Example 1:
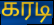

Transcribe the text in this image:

கரடி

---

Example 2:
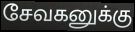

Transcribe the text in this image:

சேவகனுக்கு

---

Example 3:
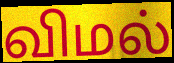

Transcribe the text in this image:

விமல்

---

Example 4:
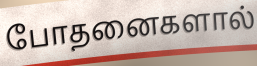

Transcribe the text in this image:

போதனைகளால்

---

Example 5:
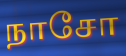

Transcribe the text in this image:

நாசோ